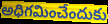
అధిగమించేందుకు